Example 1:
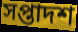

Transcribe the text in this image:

সপ্তাদশ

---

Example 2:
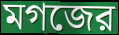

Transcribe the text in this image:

মগজের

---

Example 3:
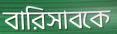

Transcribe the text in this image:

বারিসাবকে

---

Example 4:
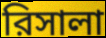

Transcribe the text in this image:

রিসালা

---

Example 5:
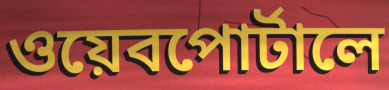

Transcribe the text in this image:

ওয়েবপোর্টালে